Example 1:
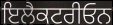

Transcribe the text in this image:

ਇਲੈਕਟਰੀਓਨ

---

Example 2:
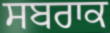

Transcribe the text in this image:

ਸਬਰਾਕ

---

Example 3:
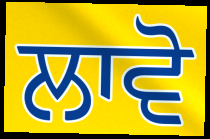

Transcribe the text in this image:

ਲਾਵੋ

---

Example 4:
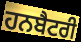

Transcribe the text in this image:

ਹਨਬੈਟਰੀ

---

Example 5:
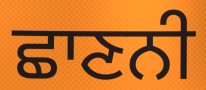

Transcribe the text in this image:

ਛਾਣਨੀ